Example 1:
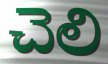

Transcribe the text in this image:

చెలి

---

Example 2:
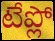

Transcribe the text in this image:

టేప్లో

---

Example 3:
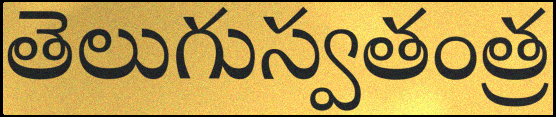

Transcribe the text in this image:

తెలుగుస్వతంత్ర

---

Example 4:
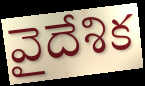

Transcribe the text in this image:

వైదేశిక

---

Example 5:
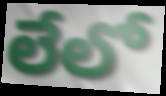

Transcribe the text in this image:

లేలో